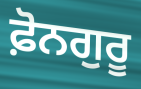
ਫ਼ੋਨਗੁਰੂ